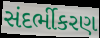
સંદર્ભીકરણ